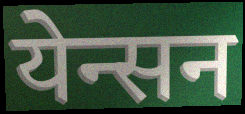
येन्सन